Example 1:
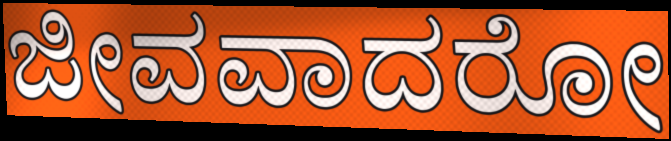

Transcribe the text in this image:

ಜೀವವಾದರೋ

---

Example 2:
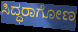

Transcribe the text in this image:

ಸಿದ್ಧರಾಗೋಣ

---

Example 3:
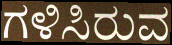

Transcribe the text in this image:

ಗಳಿಸಿರುವ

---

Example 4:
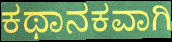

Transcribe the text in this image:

ಕಥಾನಕವಾಗಿ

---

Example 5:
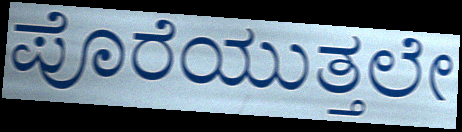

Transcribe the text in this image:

ಪೊರೆಯುತ್ತಲೇ